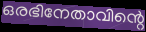
ഒരഭിനേതാവിന്റെ